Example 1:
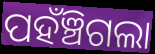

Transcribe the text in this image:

ପହଁଞ୍ଚିଗଲା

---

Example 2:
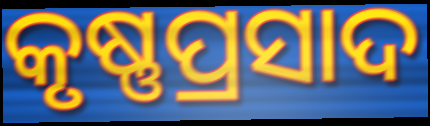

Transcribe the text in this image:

କୃଷ୍ଣପ୍ରସାଦ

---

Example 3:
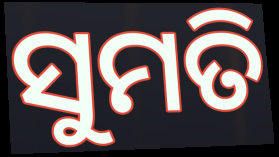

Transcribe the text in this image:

ସୁମତି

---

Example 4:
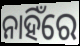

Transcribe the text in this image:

ନାହିଁରେ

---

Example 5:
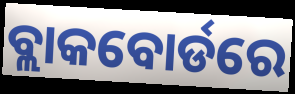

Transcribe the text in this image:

ବ୍ଲାକବୋର୍ଡରେ